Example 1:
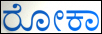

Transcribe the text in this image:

ರೋಕಾ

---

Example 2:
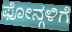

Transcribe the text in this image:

ಫೋನ್ಗಳಿಗೆ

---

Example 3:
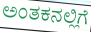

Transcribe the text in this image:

ಅಂತಕನಲ್ಲಿಗೆ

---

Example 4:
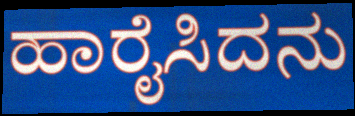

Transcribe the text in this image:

ಹಾರೈಸಿದನು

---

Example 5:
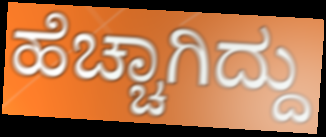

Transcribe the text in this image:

ಹೆಚ್ಚಾಗಿದ್ದು